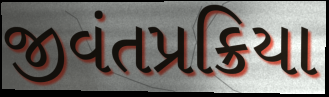
જીવંતપ્રક્રિયા